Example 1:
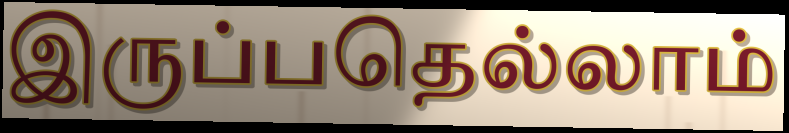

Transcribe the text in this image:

இருப்பதெல்லாம்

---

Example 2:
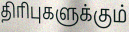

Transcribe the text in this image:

திரிபுகளுக்கும்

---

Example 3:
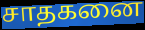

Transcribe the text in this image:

சாதகனை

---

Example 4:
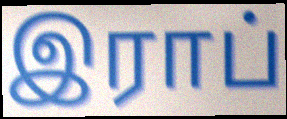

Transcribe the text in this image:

இராப்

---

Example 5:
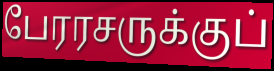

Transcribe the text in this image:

பேரரசருக்குப்